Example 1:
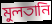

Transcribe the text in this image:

মুলতানি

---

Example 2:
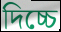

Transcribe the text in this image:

দিচ্চে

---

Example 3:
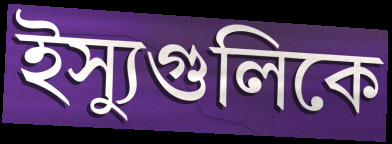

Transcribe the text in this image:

ইস্যুগুলিকে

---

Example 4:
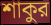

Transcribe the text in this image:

শাকুর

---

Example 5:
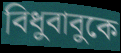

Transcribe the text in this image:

বিধুবাবুকে